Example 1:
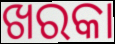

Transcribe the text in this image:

ଖରକା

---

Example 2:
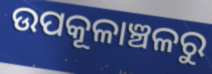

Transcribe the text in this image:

ଉପକୂଳାଞ୍ଚଳରୁ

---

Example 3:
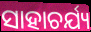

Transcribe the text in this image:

ସାହାଚର୍ଯ୍ୟ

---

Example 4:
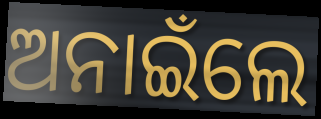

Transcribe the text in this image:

ଅନାଇଁଲେ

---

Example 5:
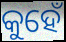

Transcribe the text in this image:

କୁହେଁ